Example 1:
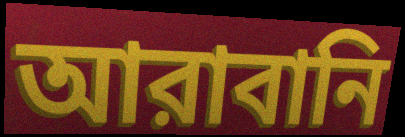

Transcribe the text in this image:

আরাবানি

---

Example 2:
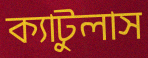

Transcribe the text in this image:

ক্যাটুলাস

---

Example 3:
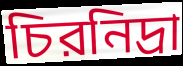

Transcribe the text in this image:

চিরনিদ্রা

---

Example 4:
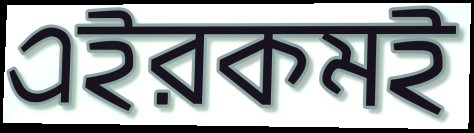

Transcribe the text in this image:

এইরকমই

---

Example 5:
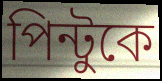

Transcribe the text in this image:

পিন্টুকে